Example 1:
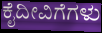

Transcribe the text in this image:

ಕೈದೀವಿಗೆಗಳು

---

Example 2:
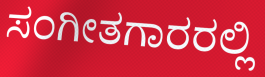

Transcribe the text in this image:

ಸಂಗೀತಗಾರರಲ್ಲಿ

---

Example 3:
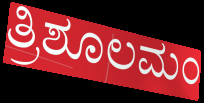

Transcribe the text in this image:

ತ್ರಿಶೂಲಮಂ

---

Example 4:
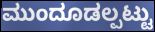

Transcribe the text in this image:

ಮುಂದೂಡಲ್ಪಟ್ಟು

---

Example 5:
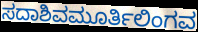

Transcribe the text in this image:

ಸದಾಶಿವಮೂರ್ತಿಲಿಂಗವ